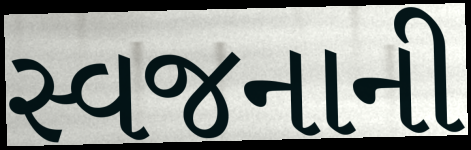
સ્વજનાની